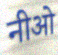
नीओ